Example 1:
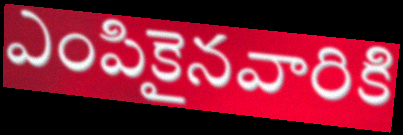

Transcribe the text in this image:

ఎంపికైనవారికి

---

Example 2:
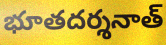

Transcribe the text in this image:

భూతదర్శనాత్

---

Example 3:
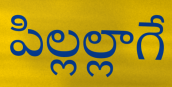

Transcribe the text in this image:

పిల్లల్లాగే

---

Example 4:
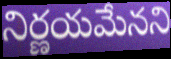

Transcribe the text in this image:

నిర్ణయమేనని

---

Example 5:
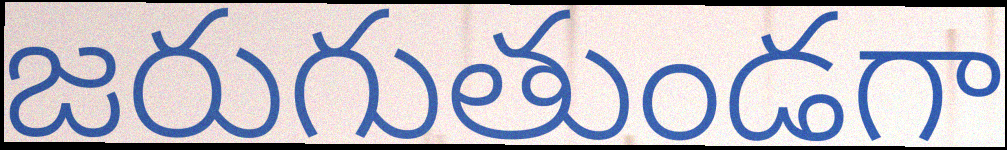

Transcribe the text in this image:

జరుగుతుండగా